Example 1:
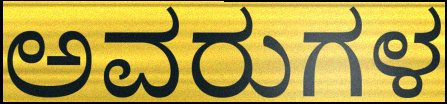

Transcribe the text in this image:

ಅವರುಗಳ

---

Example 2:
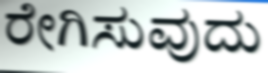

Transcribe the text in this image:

ರೇಗಿಸುವುದು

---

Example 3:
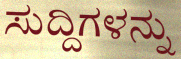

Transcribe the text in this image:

ಸುದ್ದಿಗಳನ್ನು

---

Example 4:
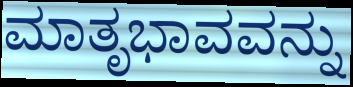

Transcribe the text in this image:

ಮಾತೃಭಾವವನ್ನು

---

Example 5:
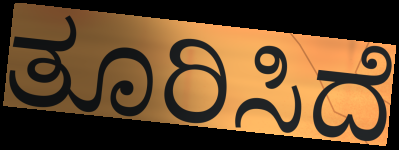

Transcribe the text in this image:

ತೂರಿಸಿದೆ